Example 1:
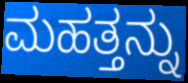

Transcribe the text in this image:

ಮಹತ್ತನ್ನು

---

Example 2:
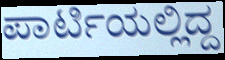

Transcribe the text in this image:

ಪಾರ್ಟಿಯಲ್ಲಿದ್ದ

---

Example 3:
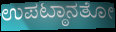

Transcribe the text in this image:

ಉಪಟ್ಠಾನತೋ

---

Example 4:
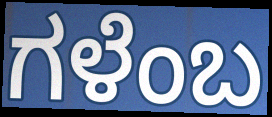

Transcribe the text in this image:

ಗಳೆಂಬ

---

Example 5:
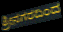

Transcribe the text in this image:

ಶ್ರೀನಗರದಿಂದ